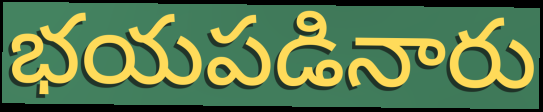
భయపడినారు